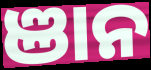
ଞାନ